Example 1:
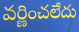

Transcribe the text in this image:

వర్ణించలేదు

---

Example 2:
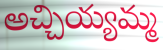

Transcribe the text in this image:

అచ్చియ్యమ్మ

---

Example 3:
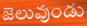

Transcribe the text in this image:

జెలువుండు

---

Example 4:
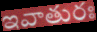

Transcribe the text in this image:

ఇవాతురః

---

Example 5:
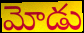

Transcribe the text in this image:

మోడు